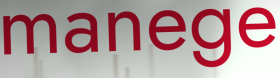
manege